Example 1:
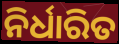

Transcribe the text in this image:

ନିର୍ଧାରିତ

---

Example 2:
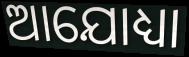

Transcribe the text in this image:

ଆଯୋଧ୍ୟା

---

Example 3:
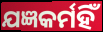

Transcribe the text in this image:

ଯଜ୍ଞକର୍ମହିଁ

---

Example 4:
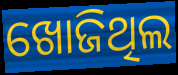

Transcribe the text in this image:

ଖୋଜିଥିଲ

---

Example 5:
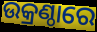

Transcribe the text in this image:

ଉକ୍ରଣ୍ଠାରେ